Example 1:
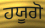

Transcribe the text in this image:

ਹਯੂਗੋ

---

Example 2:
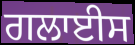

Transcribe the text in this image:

ਗਲਾਈਸ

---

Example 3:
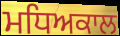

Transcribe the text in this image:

ਮਧਿਅਕਾਲ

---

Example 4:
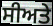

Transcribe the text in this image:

ਸੀਅਤੇ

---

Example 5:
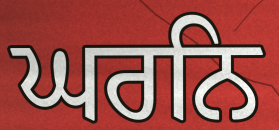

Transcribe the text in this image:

ਘਰਨਿ